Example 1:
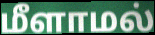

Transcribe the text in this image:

மீளாமல்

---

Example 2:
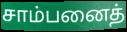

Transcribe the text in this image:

சாம்பனைத்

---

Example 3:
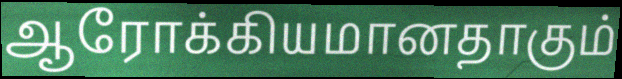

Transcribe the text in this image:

ஆரோக்கியமானதாகும்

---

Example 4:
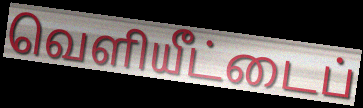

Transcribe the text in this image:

வெளியீட்டைப்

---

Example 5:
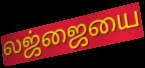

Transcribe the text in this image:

லஜ்ஜையை